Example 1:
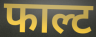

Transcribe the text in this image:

फाल्ट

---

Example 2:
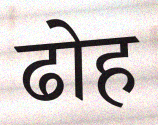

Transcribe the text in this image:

ढोह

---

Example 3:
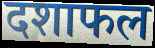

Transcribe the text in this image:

दशाफल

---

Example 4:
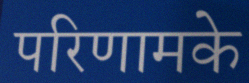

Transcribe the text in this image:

परिणामके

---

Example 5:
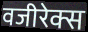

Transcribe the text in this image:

वजीरेक्स